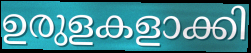
ഉരുളകളാക്കി